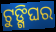
ଟୁଙ୍ଗିଘର